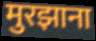
मुरझाना